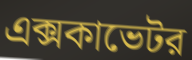
এক্সকাভেটর